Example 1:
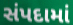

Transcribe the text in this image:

સંપદામાં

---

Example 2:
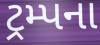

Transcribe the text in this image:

ટ્રમ્પના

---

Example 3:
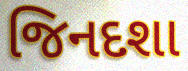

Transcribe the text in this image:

જિનદશા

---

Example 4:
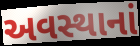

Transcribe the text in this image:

અવસ્થાનાં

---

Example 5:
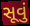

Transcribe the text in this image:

સૂવું